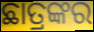
ଛାତ୍ରଙ୍କର